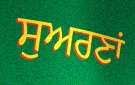
ਸੁਅਰਣਾਂ